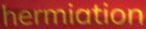
hermiation